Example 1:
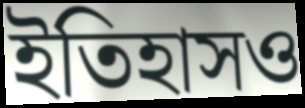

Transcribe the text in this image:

ইতিহাসও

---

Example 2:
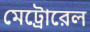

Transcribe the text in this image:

মেট্রোরেল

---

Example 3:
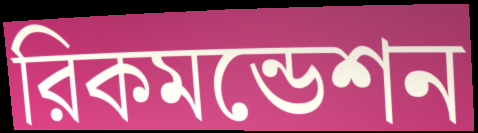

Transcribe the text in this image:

রিকমন্ডেশন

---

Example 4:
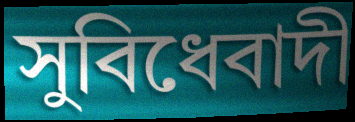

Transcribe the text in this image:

সুবিধেবাদী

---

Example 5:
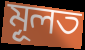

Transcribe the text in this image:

মূলত